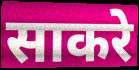
साकरे